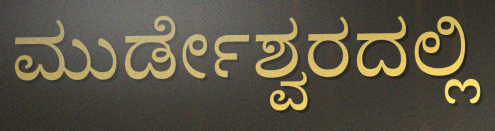
ಮುರ್ಡೇಶ್ವರದಲ್ಲಿ